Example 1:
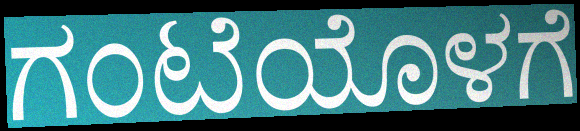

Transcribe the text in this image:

ಗಂಟೆಯೊಳಗೆ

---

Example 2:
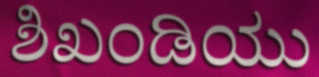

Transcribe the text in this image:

ಶಿಖಂಡಿಯು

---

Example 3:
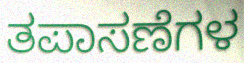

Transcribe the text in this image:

ತಪಾಸಣೆಗಳ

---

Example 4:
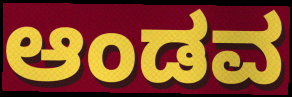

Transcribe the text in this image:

ಆಂಡವ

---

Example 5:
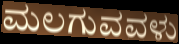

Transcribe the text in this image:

ಮಲಗುವವಳು